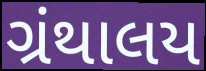
ગ્રંથાલય